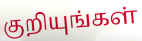
குறியுங்கள்